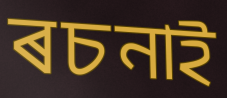
ৰচনাই